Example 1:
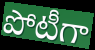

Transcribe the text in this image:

పోటీగా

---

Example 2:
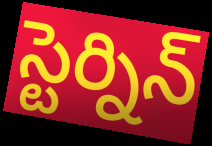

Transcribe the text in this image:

స్టెర్నిన్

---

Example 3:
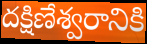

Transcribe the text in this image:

దక్షిణేశ్వరానికి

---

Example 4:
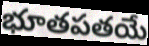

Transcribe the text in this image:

భూతపతయే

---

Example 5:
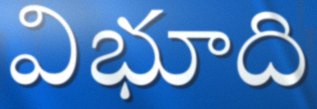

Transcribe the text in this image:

విభూది